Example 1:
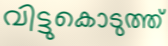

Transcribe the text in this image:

വിട്ടുകൊടുത്ത്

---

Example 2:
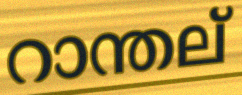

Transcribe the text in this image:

റാന്തല്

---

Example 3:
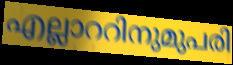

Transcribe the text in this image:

എല്ലാററിനുമുപരി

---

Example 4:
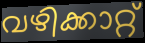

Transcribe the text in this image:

വഴിക്കാറ്റ്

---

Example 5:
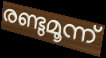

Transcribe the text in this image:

രണ്ടുമൂന്ന്